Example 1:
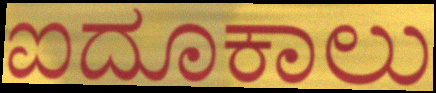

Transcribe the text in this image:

ಐದೂಕಾಲು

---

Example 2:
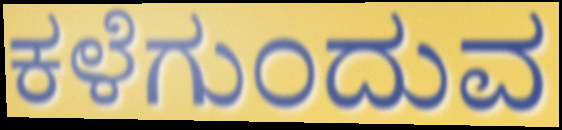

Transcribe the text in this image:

ಕಳೆಗುಂದುವ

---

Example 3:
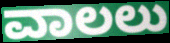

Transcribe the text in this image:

ವಾಲಲು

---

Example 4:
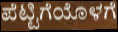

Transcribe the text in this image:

ಪೆಟ್ಟಿಗೆಯೊಳಗೆ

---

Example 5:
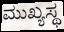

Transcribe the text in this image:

ಮುಖ್ಯಸ್ಥ